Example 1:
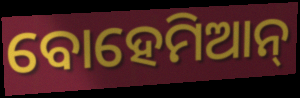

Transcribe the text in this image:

ବୋହେମିଆନ୍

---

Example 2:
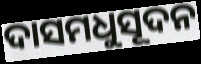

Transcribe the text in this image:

ଦାସମଧୁସୂଦନ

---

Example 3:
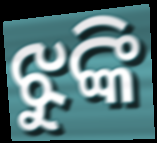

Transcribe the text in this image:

ଝୁଙ୍କି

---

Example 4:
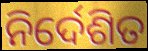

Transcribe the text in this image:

ନିର୍ଦେଶିତ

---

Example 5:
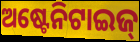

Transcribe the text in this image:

ଅଷ୍ଟେନିଟାଇଜ୍